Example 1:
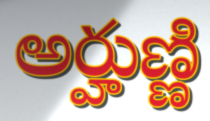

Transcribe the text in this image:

అర్హుణ్ణి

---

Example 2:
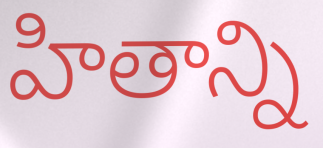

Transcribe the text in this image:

హితాన్ని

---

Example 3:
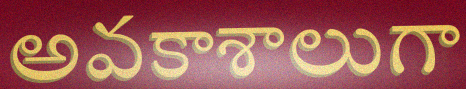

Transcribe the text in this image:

అవకాశాలుగా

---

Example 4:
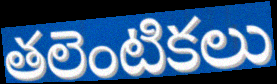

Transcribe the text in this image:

తలెంటికలు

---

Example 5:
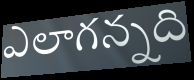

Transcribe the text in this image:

ఎలాగన్నది